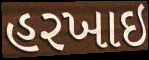
હરખાઇ